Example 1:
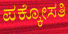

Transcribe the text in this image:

ಪಕ್ಕೋಸತಿ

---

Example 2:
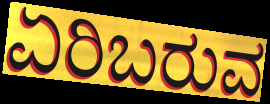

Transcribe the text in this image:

ಏರಿಬರುವ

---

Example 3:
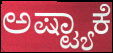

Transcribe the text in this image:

ಅಷ್ಟ್ಯಾಕೆ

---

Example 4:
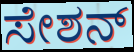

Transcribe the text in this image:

ಸೇಶನ್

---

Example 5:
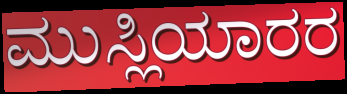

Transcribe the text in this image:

ಮುಸ್ಲಿಯಾರರ